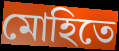
মোহিতে